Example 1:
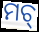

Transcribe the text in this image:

ମଚ୍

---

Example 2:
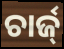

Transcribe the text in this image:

ଚାର୍ଜ୍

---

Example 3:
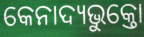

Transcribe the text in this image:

କେନାଦ୍ୟଭୁକ୍ତୋ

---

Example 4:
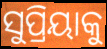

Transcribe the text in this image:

ସୁପ୍ରିୟାକୁ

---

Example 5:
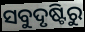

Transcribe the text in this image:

ସବୁଦୃଷ୍ଟିରୁ